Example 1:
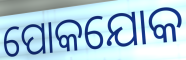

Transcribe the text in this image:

ପୋକଯୋକ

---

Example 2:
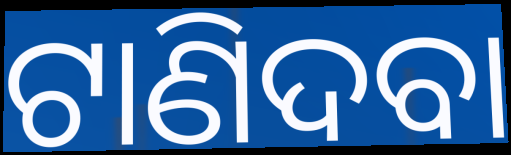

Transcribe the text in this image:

ଟାଣିଦବା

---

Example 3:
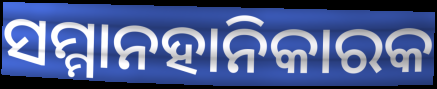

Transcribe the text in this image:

ସମ୍ମାନହାନିକାରକ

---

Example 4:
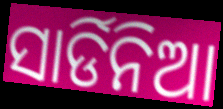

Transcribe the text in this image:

ସାର୍ଡିନିଆ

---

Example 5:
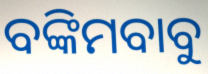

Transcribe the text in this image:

ବଙ୍କିମବାବୁ